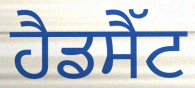
ਹੈਡਸੈੱਟ